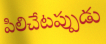
పిలిచేటప్పుడు